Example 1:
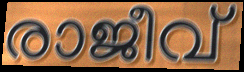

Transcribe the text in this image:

രാജീവ്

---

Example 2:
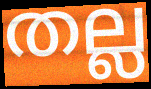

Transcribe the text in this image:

തല്ല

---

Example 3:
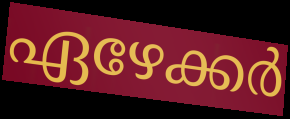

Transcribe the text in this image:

ഏഴേക്കർ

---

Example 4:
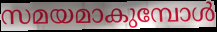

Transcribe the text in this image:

സമയമാകുമ്പോൾ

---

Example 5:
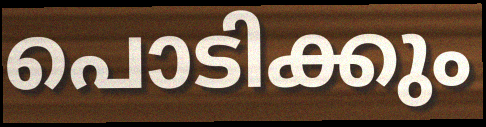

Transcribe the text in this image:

പൊടിക്കും